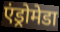
एंड्रोमेडा